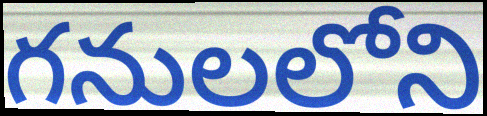
గనులలోని